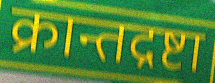
क्रान्तद्रष्टा